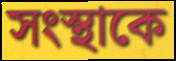
সংস্থাকে